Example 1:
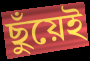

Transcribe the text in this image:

ছুঁয়েই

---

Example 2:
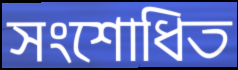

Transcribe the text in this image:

সংশোধিত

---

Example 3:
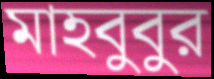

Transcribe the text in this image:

মাহবুবুর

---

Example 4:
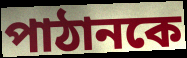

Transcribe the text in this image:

পাঠানকে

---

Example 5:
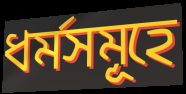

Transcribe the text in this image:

ধর্মসমূহে